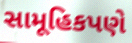
સામૂહિકપણે